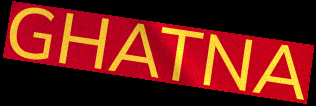
GHATNA